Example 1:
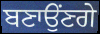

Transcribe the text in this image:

ਬਣਾਉਂਣਗੇ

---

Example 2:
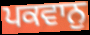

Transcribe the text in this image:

ਪਕਵਾਨੁ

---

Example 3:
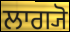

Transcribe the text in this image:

ਲਾਗ੍ਯੋ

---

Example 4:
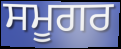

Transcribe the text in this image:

ਸਮੂਗਰ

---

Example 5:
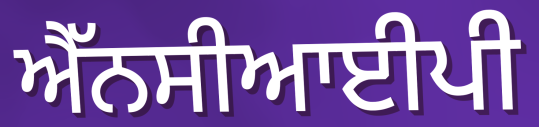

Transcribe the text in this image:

ਐੱਨਸੀਆਈਪੀ